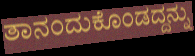
ತಾನಂದುಕೊಂಡದ್ದನ್ನು